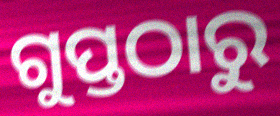
ଗୁପ୍ତଠାରୁ